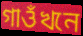
গাওঁখনে